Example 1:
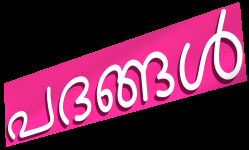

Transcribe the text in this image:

പദങ്ങൾ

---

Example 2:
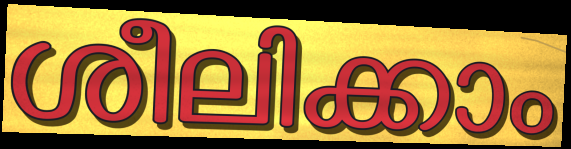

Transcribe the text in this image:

ശീലിക്കാം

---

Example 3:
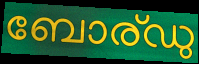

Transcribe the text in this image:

ബോര്ഡു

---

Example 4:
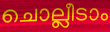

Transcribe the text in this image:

ചൊല്ലീടാം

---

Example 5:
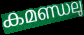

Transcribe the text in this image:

കമണ്ഡലു